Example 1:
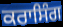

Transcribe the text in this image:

ਕਰਾਸਿੰਗ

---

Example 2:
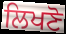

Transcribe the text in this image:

ਲਿਖਣੋ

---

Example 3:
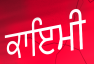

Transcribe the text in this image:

ਕਾਇਮੀ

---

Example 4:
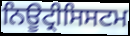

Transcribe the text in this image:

ਨਿਊਟ੍ਰੀਸਿਸਟਮ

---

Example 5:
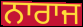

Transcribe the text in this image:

ਨਾਰਾਜ